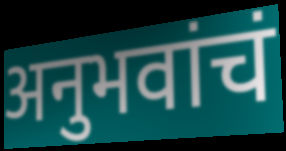
अनुभवांचं